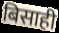
बिसाही